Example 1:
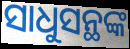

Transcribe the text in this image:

ସାଧୁସନ୍ଥଙ୍କ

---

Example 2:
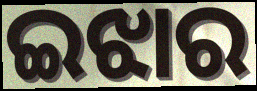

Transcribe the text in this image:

ଇଝାର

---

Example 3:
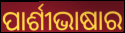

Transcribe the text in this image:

ପାର୍ଶୀଭାଷାର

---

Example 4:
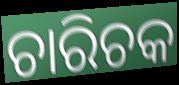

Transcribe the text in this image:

ଚାରିଚକ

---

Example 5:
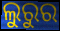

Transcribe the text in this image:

ଲୁରୁର